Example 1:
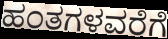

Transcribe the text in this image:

ಹಂತಗಳವರೆಗೆ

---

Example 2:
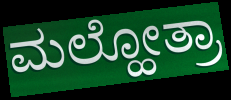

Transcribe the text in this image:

ಮಲ್ಹೋತ್ರಾ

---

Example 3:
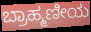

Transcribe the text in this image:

ಬ್ರಾಹ್ಮಣೀಯ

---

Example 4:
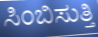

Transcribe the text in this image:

ಸಿಂಬಿಸುತ್ತಿ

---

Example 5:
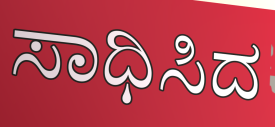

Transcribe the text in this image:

ಸಾಧಿಸಿದ